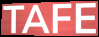
TAFE